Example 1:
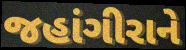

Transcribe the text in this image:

જહાંગીરાને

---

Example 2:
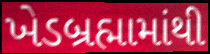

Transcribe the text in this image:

ખેડબ્રહ્મામાંથી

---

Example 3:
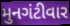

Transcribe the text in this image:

મુનગંટીવાર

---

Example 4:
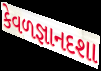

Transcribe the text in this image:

કેવળજ્ઞાનદશા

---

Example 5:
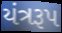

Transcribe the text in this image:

યંત્રરૂપ